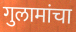
गुलामांचा